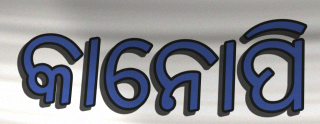
କାନୋପି